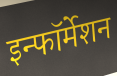
इन्फॉर्मेशन